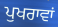
ਪੁਖਰਾਵਾਂ